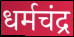
धर्मचंद्र